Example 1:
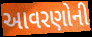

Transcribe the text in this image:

આવરણોની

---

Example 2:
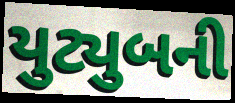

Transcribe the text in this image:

યુટ્યુબની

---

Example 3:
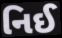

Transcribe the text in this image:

નિઈ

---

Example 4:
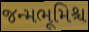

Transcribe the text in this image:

જન્મભૂમિશ્ચ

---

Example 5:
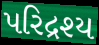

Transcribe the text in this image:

પરિદ્રશ્ય